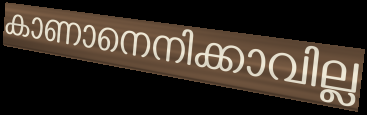
കാണാനെനിക്കാവില്ല